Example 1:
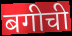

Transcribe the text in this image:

बगीची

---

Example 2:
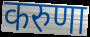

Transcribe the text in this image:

करुणा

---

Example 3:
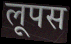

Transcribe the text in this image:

लूपस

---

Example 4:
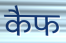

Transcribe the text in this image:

कैफ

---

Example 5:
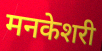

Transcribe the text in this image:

मनकेशरी